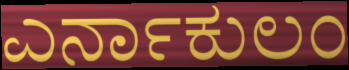
ಎರ್ನಾಕುಲಂ